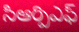
సిఆర్పిఎఫ్